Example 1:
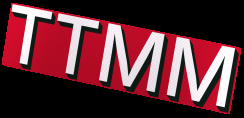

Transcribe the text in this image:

TTMM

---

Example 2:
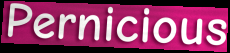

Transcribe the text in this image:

Pernicious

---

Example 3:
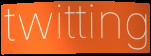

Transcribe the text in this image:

twitting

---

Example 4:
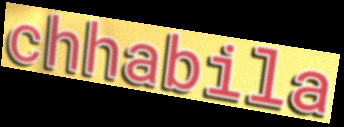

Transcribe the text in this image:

chhabila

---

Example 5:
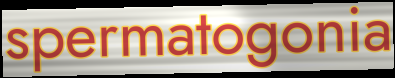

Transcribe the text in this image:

spermatogonia